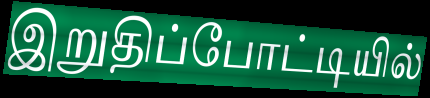
இறுதிப்போட்டியில்